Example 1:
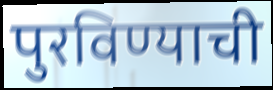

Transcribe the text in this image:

पुरविण्याची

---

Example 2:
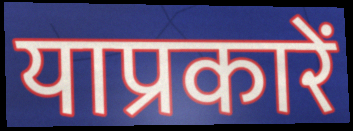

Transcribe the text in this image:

याप्रकारें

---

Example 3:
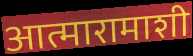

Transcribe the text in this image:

आत्मारामाशी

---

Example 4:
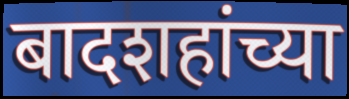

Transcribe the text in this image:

बादशहांच्या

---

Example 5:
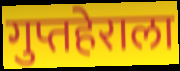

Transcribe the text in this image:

गुप्तहेराला